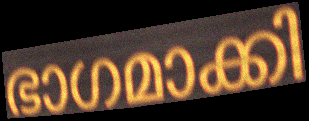
ഭാഗമാക്കി